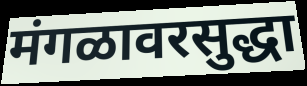
मंगळावरसुद्धा